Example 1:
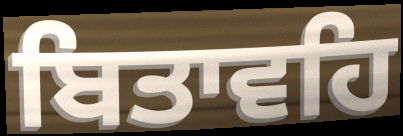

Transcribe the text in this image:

ਬਿਤਾਵਹਿ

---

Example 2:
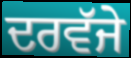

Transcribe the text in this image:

ਦਰਵੱਜੇ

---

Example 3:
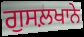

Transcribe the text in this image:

ਗੁਸਲ਼ਖਾਨੇ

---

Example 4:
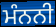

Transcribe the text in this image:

ਮੰਨਨੀ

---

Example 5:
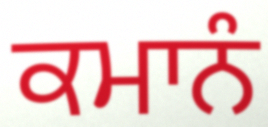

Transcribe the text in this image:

ਕਮਾਨੰ